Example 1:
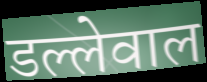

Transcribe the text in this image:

डल्लेवाल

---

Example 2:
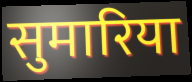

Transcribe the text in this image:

सुमारिया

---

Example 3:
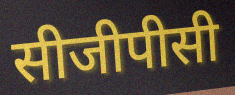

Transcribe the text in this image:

सीजीपीसी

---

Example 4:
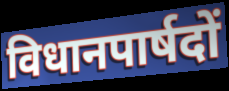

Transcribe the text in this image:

विधानपार्षदों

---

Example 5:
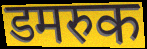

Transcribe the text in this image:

डमरुक